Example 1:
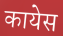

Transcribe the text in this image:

कायेस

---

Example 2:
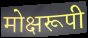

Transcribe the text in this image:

मोक्षरूपी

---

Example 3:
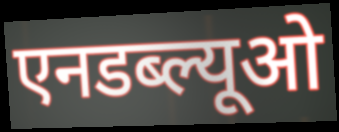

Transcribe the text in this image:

एनडब्ल्यूओ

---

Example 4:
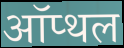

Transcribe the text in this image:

ऑप्थल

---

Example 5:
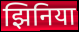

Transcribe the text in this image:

झिनिया